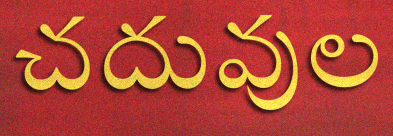
చదువుల